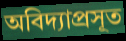
অবিদ্যাপ্রসূত